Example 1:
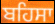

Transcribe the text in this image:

ਬਹਿਸਾ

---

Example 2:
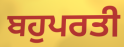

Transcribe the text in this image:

ਬਹੁਪਰਤੀ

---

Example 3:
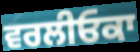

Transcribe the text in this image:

ਵਰਲੀਓਕਾ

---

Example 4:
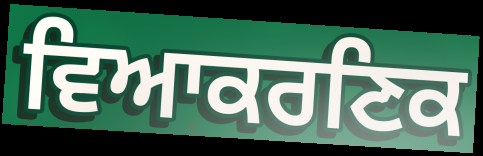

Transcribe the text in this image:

ਵਿਆਕਰਣਿਕ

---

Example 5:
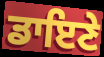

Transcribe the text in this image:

ਡਾਇਣੇ